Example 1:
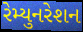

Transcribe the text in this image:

રેમ્યુનરેશન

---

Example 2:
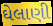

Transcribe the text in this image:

ઘેલાણી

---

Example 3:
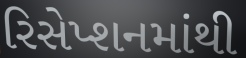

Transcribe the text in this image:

રિસેપ્શનમાંથી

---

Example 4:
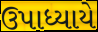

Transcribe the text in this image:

ઉપાધ્યાયે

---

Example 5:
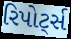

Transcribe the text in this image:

રિપોર્ટ્સ